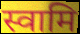
स्वामि